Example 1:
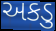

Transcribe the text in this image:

અકડુ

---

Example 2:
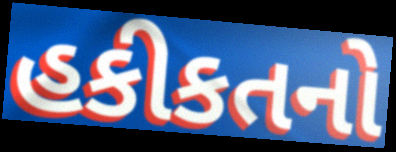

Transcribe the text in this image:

હકીકતનો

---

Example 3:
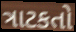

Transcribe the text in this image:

ત્રાટકતો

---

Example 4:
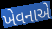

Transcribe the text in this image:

ખેવનાએ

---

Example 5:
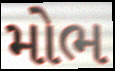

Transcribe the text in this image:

મોભ